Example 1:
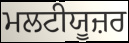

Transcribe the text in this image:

ਮਲਟੀਯੂਜ਼ਰ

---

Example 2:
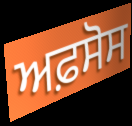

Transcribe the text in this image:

ਅਫ਼ਸੋਸ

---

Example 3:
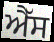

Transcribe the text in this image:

ਐੱਸ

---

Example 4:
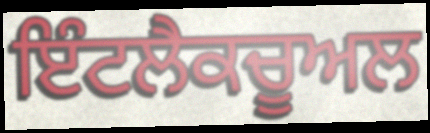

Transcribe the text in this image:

ਇੰਟਲੈਕਚੂਅਲ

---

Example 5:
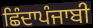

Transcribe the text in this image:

ਛਿੰਦਾਪੰਜਾਬੀ